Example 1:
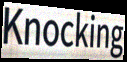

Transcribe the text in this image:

Knocking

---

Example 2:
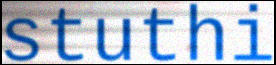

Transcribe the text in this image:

stuthi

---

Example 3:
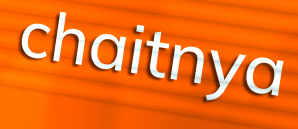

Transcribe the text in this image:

chaitnya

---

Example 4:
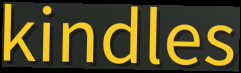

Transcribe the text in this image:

kindles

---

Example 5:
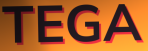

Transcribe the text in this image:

TEGA